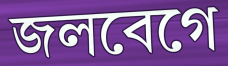
জলবেগে